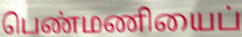
பெண்மணியைப்